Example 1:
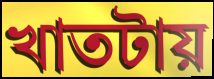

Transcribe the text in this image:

খাতটায়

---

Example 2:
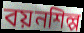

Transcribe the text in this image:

বয়নশিল্প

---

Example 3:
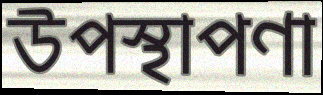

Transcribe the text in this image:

উপস্থাপণা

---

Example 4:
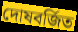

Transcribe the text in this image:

দোষবর্জিত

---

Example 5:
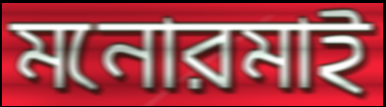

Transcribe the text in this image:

মনোরমাই